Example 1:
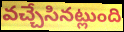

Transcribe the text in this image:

వచ్చేసినట్లుంది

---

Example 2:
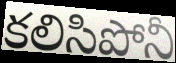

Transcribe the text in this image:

కలిసిపోనీ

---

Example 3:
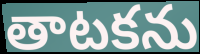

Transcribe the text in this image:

తాటకను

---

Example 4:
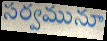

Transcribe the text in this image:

సర్వమునూ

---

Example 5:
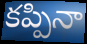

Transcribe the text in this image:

కప్పినా